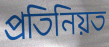
প্রতিনিয়ত